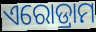
ଏରୋଡ୍ରାମ